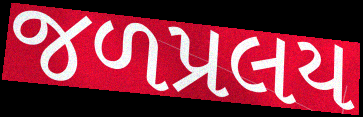
જળપ્રલય